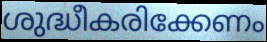
ശുദ്ധീകരിക്കേണം